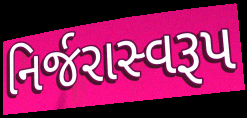
નિર્જરાસ્વરૂપ